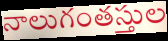
నాలుగంతస్తుల